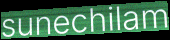
sunechilam